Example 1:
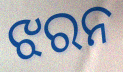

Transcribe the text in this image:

ଝରନ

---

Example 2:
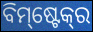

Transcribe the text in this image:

ବିମ୍‌ଷ୍ଟେକ୍‌ର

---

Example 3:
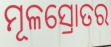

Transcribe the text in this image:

ମୂଳସ୍ରୋତର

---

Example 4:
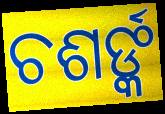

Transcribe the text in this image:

ଚଶର୍ଙ୍କ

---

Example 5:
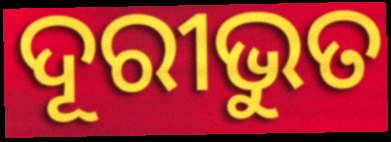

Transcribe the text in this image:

ଦୂରୀଭୁତ